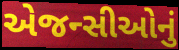
એજન્સીઓનું